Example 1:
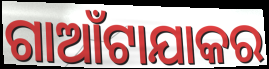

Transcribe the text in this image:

ଗାଆଁଟାଯାକର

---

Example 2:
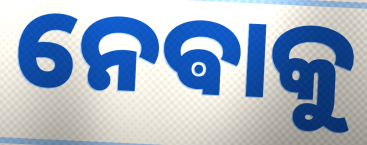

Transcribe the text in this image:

ନେଵାକୁ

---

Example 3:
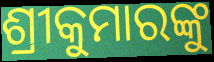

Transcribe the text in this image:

ଶ୍ରୀକୁମାରଙ୍କୁ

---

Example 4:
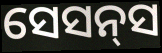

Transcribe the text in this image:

ସେସନ୍‌ସ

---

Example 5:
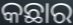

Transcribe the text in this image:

କଛାର